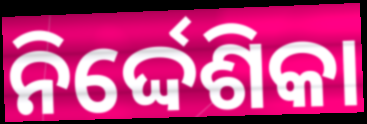
ନିର୍ଦ୍ଦେଶିକା